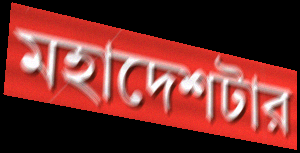
মহাদেশটার